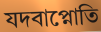
যদবাপ্নোতি